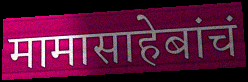
मामासाहेबांचं